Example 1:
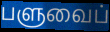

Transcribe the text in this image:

பளுவைப்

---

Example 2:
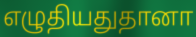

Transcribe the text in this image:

எழுதியதுதானா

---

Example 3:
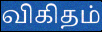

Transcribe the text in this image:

விகிதம்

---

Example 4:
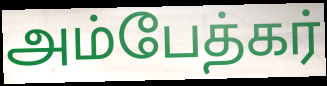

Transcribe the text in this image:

அம்பேத்கர்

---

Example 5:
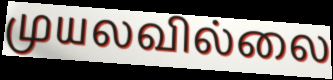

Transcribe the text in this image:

முயலவில்லை